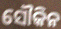
ସୌକିନ